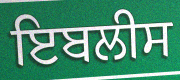
ਇਬਲੀਸ